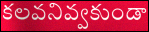
కలవనివ్వకుండా